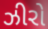
ઝીરો